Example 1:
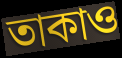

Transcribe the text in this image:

তাকাও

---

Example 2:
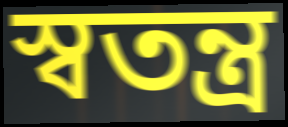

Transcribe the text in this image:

স্বতন্ত্র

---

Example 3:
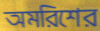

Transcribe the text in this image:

অমরিশের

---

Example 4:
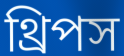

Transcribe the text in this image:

থ্রিপস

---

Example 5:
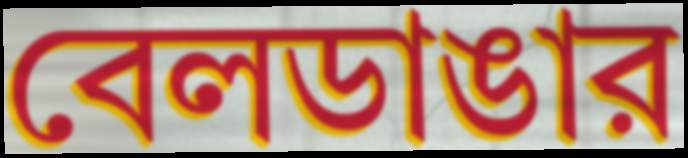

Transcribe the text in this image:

বেলডাঙার